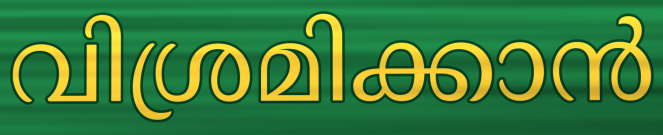
വിശ്രമിക്കാൻ